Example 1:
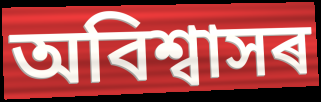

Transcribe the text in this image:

অবিশ্বাসৰ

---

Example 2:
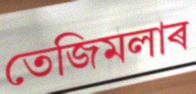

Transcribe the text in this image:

তেজিমলাৰ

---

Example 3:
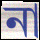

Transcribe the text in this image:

না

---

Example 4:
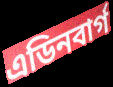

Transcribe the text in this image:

এডিনবাৰ্গ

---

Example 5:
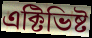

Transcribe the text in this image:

এক্টিভিষ্ট